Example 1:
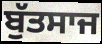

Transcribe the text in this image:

ਬੁੱਤਸਾਜ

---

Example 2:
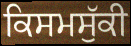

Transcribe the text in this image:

ਕਿਸਮਸੁੱਕੀ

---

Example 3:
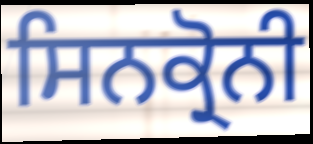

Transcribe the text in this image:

ਸਿਨਕ੍ਰੋਨੀ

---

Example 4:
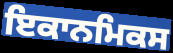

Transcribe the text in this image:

ਇਕਾਨਮਿਕਸ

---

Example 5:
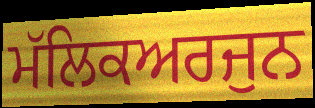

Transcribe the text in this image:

ਮੱਲਿਕਅਰਜੁਨ